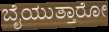
ಬೈಯುತ್ತಾರೋ